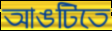
আঙটিতে